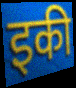
इकी